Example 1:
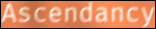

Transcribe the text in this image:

Ascendancy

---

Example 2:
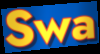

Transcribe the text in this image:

Swa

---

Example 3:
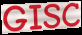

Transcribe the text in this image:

GISC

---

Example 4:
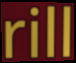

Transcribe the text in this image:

rill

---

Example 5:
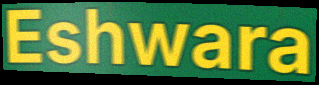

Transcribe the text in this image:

Eshwara